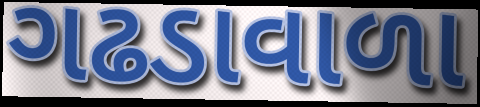
ગઢડાવાળા